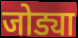
जोड्या